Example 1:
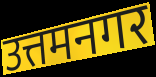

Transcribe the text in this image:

उत्तमनगर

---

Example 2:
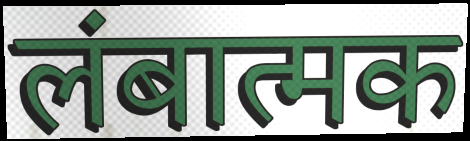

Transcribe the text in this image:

लंबात्मक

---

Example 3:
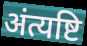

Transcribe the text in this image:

अंत्यष्टि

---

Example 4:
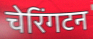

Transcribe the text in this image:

चेरिंगटन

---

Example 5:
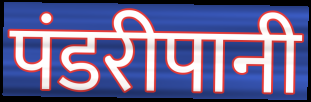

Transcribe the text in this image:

पंडरीपानी